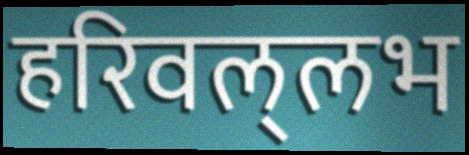
हरिवल्लभ